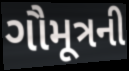
ગૌમૂત્રની